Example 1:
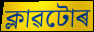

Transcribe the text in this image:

ক্লাৱটোৰ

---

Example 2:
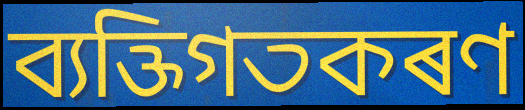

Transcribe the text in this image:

ব্যক্তিগতকৰণ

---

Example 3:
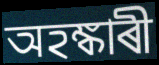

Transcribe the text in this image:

অহঙ্কাৰী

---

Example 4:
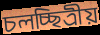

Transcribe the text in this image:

চলচ্ছিত্ৰীয়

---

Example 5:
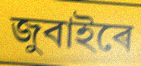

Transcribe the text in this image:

জুবাইৰে